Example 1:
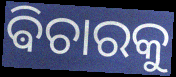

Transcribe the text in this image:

ଵିଚାରକୁ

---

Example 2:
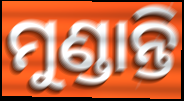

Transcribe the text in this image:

ମୁଣ୍ଡାନ୍ତି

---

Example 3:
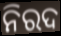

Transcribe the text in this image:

ନିରଦ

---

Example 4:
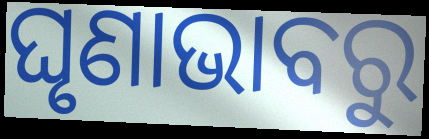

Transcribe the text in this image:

ଘୃଣାଭାବରୁ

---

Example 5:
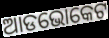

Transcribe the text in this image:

ଆଡଭୋକେଟ